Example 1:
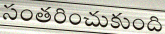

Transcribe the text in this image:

సంతరించుకుంది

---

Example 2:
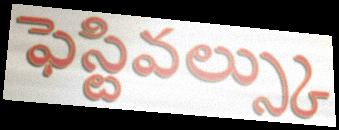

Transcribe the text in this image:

ఫెస్టివల్స్కు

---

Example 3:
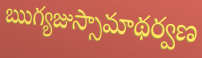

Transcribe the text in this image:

ఋగ్యజుస్సామాథర్వణ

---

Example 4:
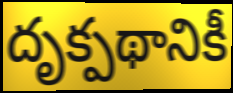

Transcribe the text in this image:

దృక్పథానికీ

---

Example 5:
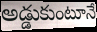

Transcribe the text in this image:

అడ్డుకుంటూనే